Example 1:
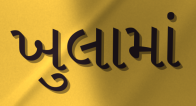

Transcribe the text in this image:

ખુલામાં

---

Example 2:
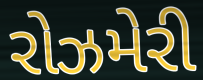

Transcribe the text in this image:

રોઝમેરી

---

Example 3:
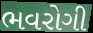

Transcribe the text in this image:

ભવરોગી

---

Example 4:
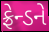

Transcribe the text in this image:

ફ્રેન્ડને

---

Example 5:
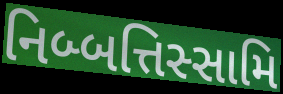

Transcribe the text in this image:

નિબ્બત્તિસ્સામિ